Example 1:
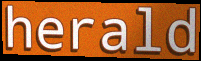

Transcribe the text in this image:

herald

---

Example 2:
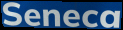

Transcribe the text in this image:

Seneca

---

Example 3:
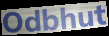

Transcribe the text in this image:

Odbhut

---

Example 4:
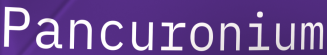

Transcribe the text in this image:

Pancuronium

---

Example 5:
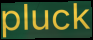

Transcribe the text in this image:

pluck